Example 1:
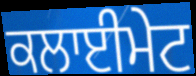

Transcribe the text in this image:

ਕਲਾਈਮੇਟ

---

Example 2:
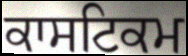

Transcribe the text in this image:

ਕਾਸਟਿਕਮ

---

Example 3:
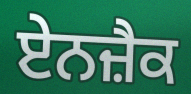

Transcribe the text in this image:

ਏਨਜ਼ੈਕ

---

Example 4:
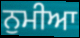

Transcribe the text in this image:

ਨੁਮੀਆ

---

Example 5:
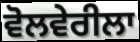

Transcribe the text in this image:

ਵੋਲਵੇਰੀਲਾ